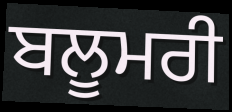
ਬਲੂਮਰੀ